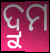
ଦ୍ରୁମ